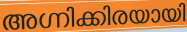
അഗ്നിക്കിരയായി